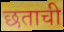
छताची